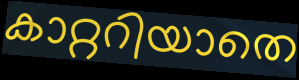
കാറ്ററിയാതെ